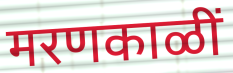
मरणकाळीं